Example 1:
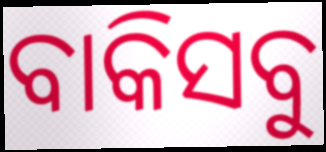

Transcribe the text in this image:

ବାକିସବୁ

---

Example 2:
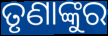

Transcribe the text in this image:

ତୃଣାଙ୍କୁର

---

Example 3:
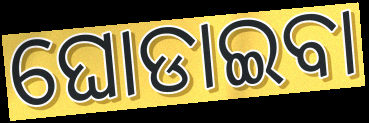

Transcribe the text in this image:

ଘୋଡାଇବା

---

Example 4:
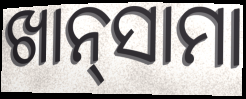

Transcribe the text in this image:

ଖାନ୍‍ସାମା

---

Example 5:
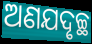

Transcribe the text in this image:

ଅଣଯଦୃଚ୍ଛ